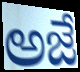
అజే